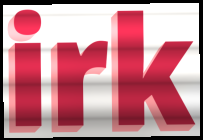
irk